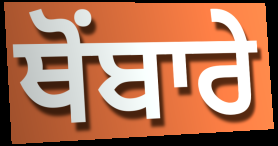
ਥੋਂਬਾਰੇ